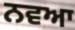
ਨਵਆ